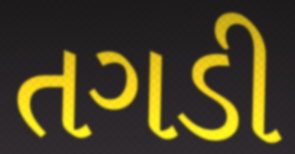
તગડી